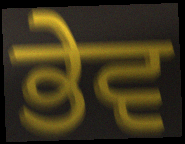
ਭੇਵ